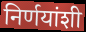
निर्णयांशी